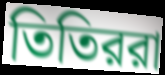
তিতিররা